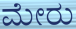
ಮೇರು